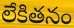
లేకితనం